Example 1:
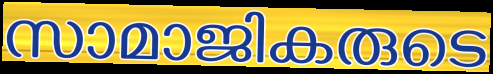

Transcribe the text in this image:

സാമാജികരുടെ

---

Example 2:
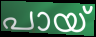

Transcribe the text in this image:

പായ്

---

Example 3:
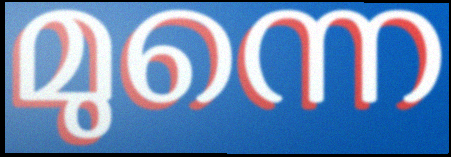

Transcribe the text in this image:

മുന്നെ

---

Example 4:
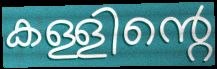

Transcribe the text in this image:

കള്ളിന്റെ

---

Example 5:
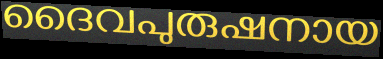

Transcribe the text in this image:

ദൈവപുരുഷനായ